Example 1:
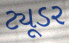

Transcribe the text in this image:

ટ્યૂડર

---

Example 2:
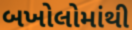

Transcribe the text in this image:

બખોલોમાંથી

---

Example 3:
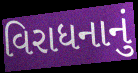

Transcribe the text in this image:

વિરાધનાનું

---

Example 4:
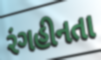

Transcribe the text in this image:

રંગહીનતા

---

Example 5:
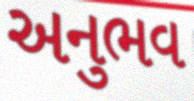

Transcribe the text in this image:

અનુભવ